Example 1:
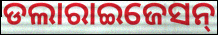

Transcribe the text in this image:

ଡଲାରାଇଜେସନ୍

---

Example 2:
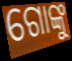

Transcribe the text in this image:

ଗୋଙ୍କୁ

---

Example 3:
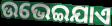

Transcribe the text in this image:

ଉଭେଇଯାଏ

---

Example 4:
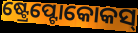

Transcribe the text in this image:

ଷ୍ଟ୍ରେପ୍ଟୋକୋକସ୍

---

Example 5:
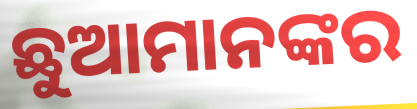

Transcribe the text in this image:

ଛୁଆମାନଙ୍କର